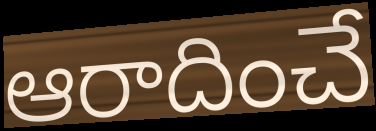
ఆరాదించే